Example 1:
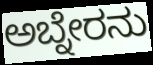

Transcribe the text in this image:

ಅಬ್ನೇರನು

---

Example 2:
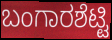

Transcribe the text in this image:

ಬಂಗಾರಶೆಟ್ಟಿ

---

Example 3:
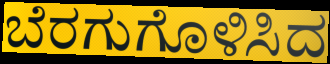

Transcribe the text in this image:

ಬೆರಗುಗೊಳಿಸಿದ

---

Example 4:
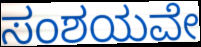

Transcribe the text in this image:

ಸಂಶಯವೇ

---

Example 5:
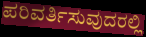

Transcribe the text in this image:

ಪರಿವರ್ತಿಸುವುದರಲ್ಲಿ